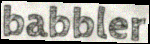
babbler